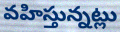
వహిస్తున్నట్లు